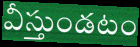
వీస్తుండటం